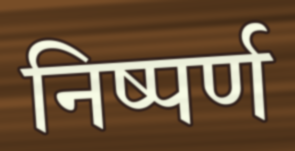
निष्पर्ण